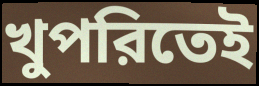
খুপরিতেই